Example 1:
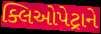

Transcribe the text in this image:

ક્લિઓપેટ્રાને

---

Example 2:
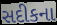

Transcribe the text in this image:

સદીકના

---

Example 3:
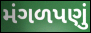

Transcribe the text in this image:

મંગળપણું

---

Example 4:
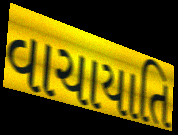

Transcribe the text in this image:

વાચાયાતિ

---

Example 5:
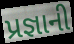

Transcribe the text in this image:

પ્રજ્ઞાની